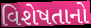
વિશેષતાનો